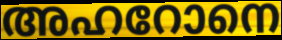
അഹറോനെ